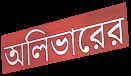
অলিভারের